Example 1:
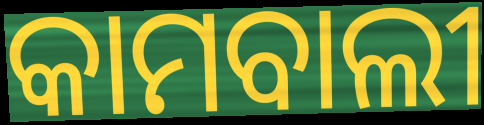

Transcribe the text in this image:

କାମବାଲୀ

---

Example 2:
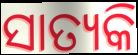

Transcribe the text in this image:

ସାତ୍ଯକି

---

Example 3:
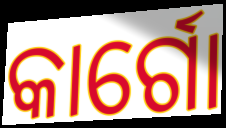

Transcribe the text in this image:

କାର୍ଗୋ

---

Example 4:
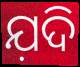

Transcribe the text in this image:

ଯ଼ଦି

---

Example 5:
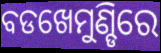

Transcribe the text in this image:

ବଡଖେମୁଣ୍ଡିରେ